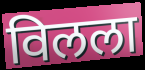
विलला